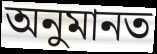
অনুমানত